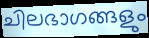
ചിലഭാഗങ്ങളും